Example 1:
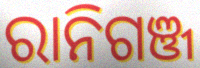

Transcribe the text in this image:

ରାନିଗଞ୍ଜ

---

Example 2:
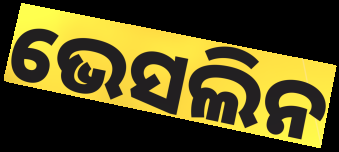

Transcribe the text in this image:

ଭେସଲିନ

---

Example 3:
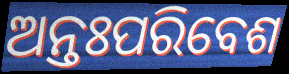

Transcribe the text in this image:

ଅନ୍ତଃପରିବେଶ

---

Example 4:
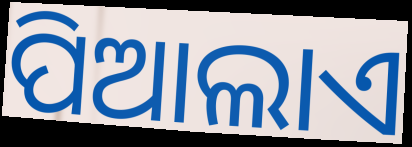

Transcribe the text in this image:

ପିଆଲାଏ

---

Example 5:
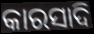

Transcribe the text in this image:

କାରସାଦି